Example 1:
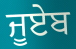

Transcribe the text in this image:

ਜੂਏਬ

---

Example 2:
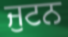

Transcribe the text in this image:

ਜੁਟਨ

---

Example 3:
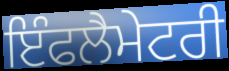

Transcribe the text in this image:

ਇੰਫਲੈਮੇਟਰੀ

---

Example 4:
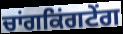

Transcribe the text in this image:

ਚਾਂਗਕਿਂਗਟੇਂਗ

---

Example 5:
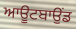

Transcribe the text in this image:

ਆਊਟਬਾਉਂਡ